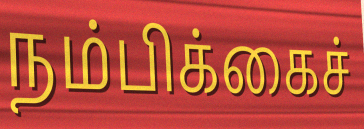
நம்பிக்கைச்